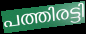
പത്തിരട്ടി